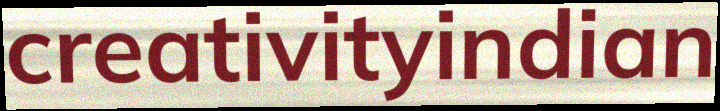
creativityindian